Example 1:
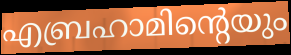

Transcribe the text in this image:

എബ്രഹാമിന്റെയും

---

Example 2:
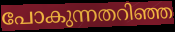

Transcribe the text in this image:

പോകുന്നതറിഞ്ഞ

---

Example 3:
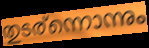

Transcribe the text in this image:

തുടര്ന്നൊന്നും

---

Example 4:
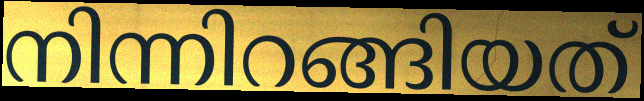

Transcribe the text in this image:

നിന്നിറങ്ങിയത്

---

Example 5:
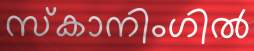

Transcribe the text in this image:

സ്കാനിംഗിൽ